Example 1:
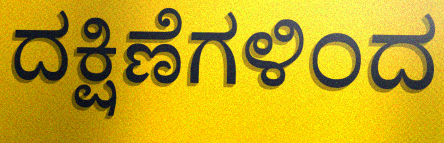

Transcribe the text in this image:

ದಕ್ಷಿಣೆಗಳಿಂದ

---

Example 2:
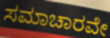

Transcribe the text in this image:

ಸಮಾಚಾರವೇ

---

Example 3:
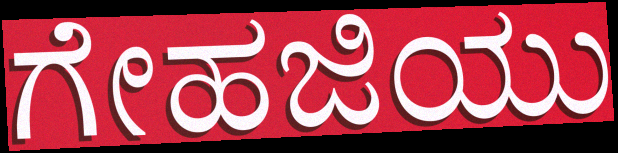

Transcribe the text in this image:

ಗೇಹಜಿಯು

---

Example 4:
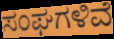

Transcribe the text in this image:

ಸಂಘಗಳಿವೆ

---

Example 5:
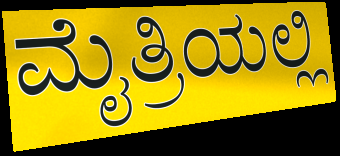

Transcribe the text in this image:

ಮೈತ್ರಿಯಲ್ಲಿ